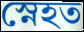
স্নেহত